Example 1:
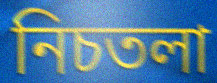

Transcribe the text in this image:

নিচতলা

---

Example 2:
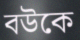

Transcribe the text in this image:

বউকে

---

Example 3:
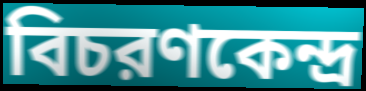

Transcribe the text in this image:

বিচরণকেন্দ্র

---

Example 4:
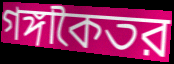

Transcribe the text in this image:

গঙ্গাকৈতর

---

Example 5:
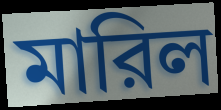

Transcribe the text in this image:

মারিল